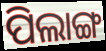
ପିଲାଙ୍ଗ